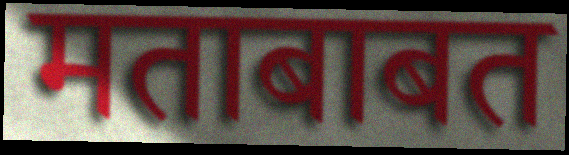
मताबाबत